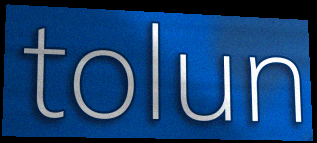
tolun